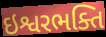
ઇશ્વરભક્તિ